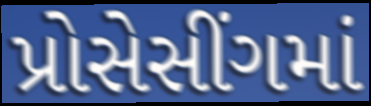
પ્રોસેસીંગમાં